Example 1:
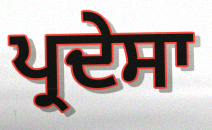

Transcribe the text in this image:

ਪ੍ਰਦੇਸਾ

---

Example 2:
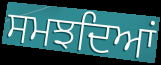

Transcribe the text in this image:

ਸਮਝਦਿਆਂ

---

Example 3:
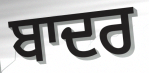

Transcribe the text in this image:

ਬਾਦਰ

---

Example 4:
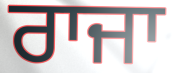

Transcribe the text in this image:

ਰਾਜਾ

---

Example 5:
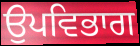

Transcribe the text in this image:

ਉਪਵਿਭਾਗ